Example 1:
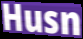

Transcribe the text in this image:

Husn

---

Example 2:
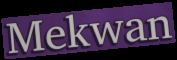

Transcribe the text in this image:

Mekwan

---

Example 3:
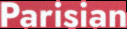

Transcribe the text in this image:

Parisian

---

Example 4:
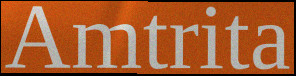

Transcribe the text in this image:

Amtrita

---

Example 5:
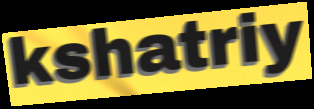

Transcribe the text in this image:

kshatriy